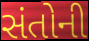
સંતોની